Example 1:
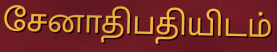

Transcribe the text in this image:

சேனாதிபதியிடம்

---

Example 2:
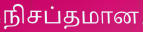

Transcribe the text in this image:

நிசப்தமான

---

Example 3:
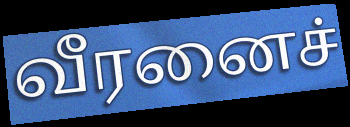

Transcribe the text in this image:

வீரனைச்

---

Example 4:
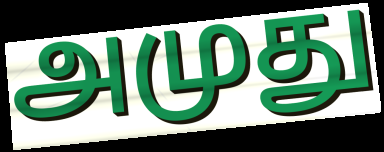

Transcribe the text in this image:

அமுது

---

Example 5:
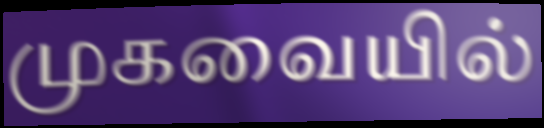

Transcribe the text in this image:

முகவையில்